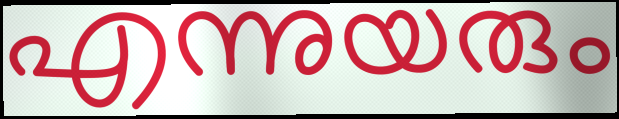
എന്നുയരും